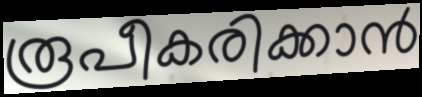
രൂപീകരിക്കാൻ